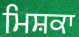
ਮਿਸ਼ਕਾ